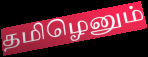
தமிழெனும்